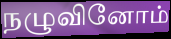
நழுவினோம்